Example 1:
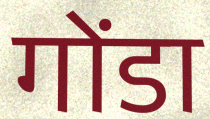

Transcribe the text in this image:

गोंडा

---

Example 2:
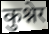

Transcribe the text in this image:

कुश्नेर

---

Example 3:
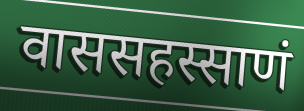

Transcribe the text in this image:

वाससहस्साणं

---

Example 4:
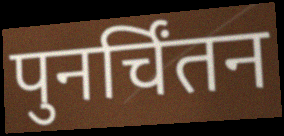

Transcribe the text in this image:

पुनर्चिंतन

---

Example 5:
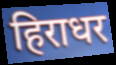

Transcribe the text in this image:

हिराधर